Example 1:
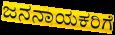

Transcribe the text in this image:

ಜನನಾಯಕರಿಗೆ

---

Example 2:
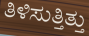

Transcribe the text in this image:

ತಿಳಿಸುತ್ತಿತ್ತು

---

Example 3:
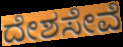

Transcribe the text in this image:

ದೇಶಸೇವೆ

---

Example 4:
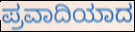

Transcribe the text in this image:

ಪ್ರವಾದಿಯಾದ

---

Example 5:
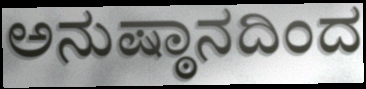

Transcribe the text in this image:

ಅನುಷ್ಠಾನದಿಂದ